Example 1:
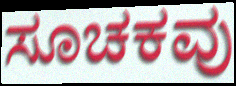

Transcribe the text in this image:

ಸೂಚಕವು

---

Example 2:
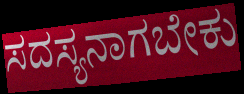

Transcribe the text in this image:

ಸದಸ್ಯನಾಗಬೇಕು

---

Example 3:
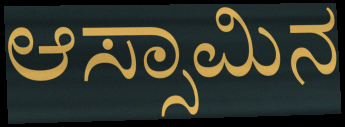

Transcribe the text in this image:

ಆಸ್ಸಾಮಿನ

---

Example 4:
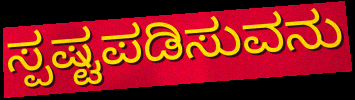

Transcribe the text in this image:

ಸ್ಪಷ್ಟಪಡಿಸುವನು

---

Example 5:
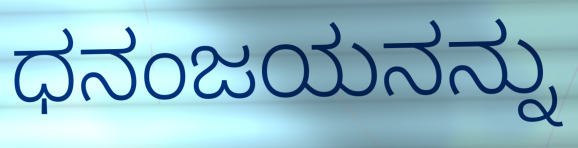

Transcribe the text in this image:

ಧನಂಜಯನನ್ನು